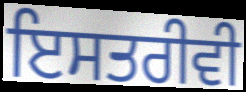
ਇਸਤਰੀਵੀ